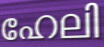
ഹേലി